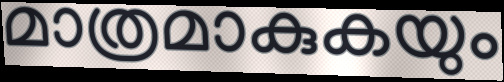
മാത്രമാകുകയും